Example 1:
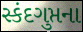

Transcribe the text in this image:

સ્કંદગુપ્તના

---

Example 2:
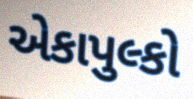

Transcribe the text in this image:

એકાપુલ્કો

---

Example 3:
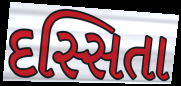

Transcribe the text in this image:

દસ્સિતા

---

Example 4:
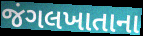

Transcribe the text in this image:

જંગલખાતાના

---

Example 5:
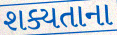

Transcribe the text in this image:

શક્યતાના